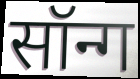
सॉन्ग